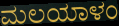
ಮಲಯಾಳಂ